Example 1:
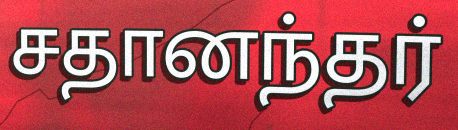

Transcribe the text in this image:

சதானந்தர்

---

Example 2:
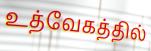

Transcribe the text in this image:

உத்வேகத்தில்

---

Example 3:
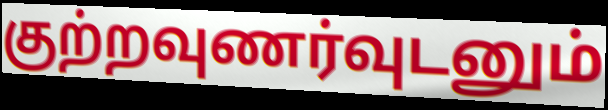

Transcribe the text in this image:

குற்றவுணர்வுடனும்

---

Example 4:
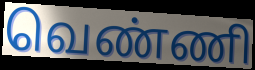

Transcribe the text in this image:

வெண்ணி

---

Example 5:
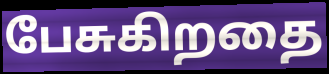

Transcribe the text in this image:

பேசுகிறதை